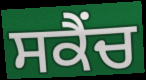
ਸਕੈਂਚ